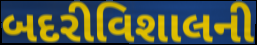
બદરીવિશાલની